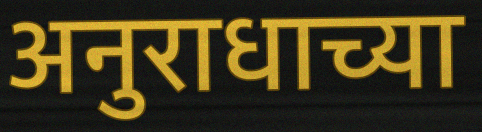
अनुराधाच्या